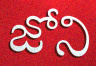
జోని